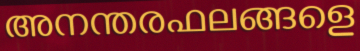
അനന്തരഫലങ്ങളെ